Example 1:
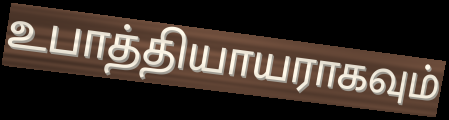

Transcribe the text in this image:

உபாத்தியாயராகவும்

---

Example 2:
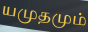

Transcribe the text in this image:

யமுதமும்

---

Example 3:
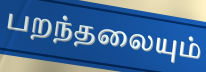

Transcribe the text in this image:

பறந்தலையும்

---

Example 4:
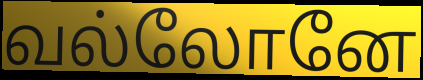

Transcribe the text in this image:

வல்லோனே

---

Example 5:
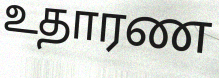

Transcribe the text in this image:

உதாரண